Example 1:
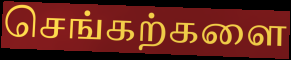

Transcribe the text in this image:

செங்கற்களை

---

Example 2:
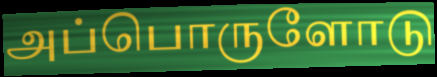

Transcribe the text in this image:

அப்பொருளோடு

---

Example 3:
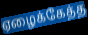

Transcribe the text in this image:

ஏழைக்கேத்த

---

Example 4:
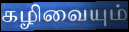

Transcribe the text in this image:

கழிவையும்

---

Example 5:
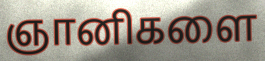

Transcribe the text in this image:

ஞானிகளை